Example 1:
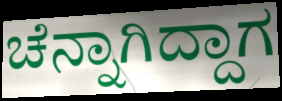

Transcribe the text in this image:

ಚೆನ್ನಾಗಿದ್ದಾಗ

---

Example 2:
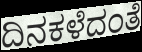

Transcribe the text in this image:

ದಿನಕಳೆದಂತೆ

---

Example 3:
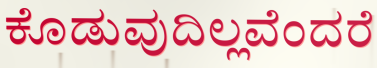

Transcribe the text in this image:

ಕೊಡುವುದಿಲ್ಲವೆಂದರೆ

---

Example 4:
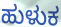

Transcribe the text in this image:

ಹುಳುಕ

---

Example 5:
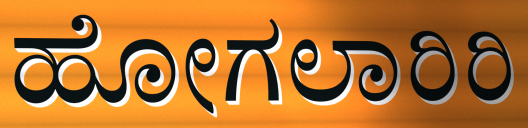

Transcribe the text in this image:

ಹೋಗಲಾರಿರಿ